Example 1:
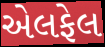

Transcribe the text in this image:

એલફેલ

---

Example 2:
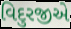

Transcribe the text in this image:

વિદુરજીએ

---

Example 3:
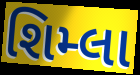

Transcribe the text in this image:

શિમ્લા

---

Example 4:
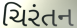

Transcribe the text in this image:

ચિરંતન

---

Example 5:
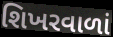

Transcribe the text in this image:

શિખરવાળાં